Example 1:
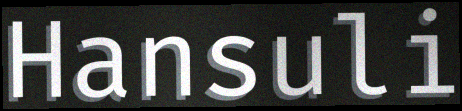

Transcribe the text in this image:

Hansuli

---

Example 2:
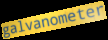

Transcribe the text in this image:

galvanometer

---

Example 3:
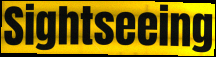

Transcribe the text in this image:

Sightseeing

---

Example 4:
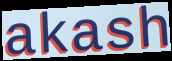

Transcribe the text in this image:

akash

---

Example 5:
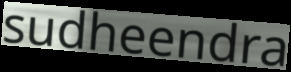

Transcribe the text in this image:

sudheendra